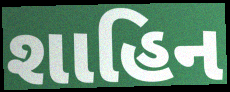
શાહિન